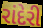
રાંદેરી